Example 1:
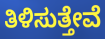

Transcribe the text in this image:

ತಿಳಿಸುತ್ತೇವೆ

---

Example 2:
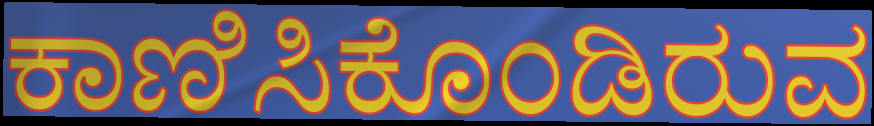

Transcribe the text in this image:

ಕಾಣಿಸಿಕೊಂಡಿರುವ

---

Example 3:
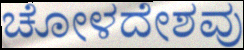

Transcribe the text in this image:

ಚೋಳದೇಶವು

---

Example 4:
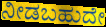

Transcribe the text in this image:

ನೀಡಬಹುದೇ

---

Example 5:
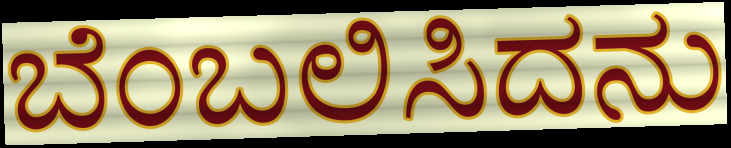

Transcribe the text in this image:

ಬೆಂಬಲಿಸಿದನು